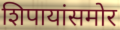
शिपायांसमोर